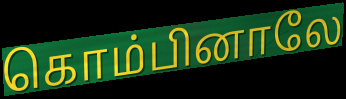
கொம்பினாலே